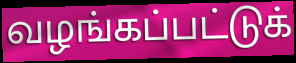
வழங்கப்பட்டுக்